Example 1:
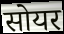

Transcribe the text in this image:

सोयर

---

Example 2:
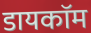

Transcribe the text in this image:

डायकॉम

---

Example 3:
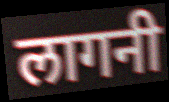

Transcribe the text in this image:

लागनी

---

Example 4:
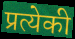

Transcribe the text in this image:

प्रत्येकी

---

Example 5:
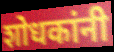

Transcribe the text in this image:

शोधकांनी